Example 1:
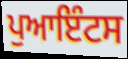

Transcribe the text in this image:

ਪੁਆਇੰਟਸ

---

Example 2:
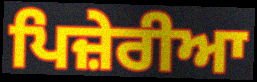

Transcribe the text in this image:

ਪਿਜ਼ੇਰੀਆ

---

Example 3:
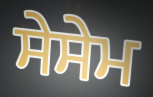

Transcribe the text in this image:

ਸੇਸੇਮ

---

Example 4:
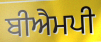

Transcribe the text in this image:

ਬੀਐਮਪੀ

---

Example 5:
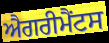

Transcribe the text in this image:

ਐਗਰੀਮੈਂਟਸ